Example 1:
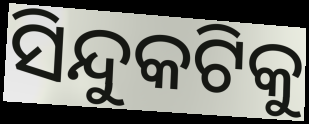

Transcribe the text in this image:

ସିନ୍ଦୁକଟିକୁ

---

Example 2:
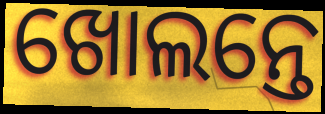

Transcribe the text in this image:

ଖୋଲନ୍ତେ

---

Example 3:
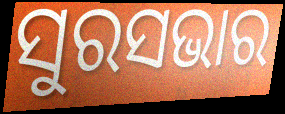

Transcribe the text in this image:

ସୁରସଭାର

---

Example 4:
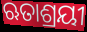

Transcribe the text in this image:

ଋତାଶ୍ରୟୀ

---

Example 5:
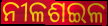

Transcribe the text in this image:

ନୀଳଶଇଳ